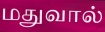
மதுவால்